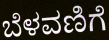
ಬೆಳವಣಿಗೆ